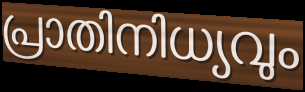
പ്രാതിനിധ്യവും